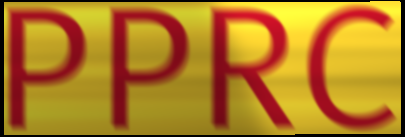
PPRC